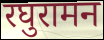
रघुरामन